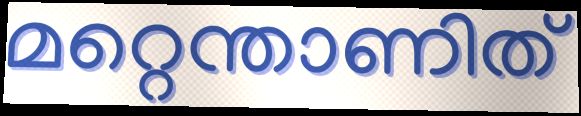
മറ്റെന്താണിത്